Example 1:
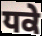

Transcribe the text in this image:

ਧਕੇ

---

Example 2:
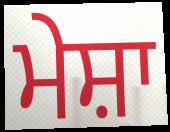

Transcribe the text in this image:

ਮੇਸ਼ਾ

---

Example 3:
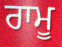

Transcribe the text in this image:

ਰਾਮੂ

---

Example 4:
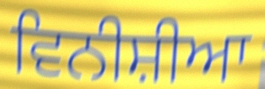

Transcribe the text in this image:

ਵਿਨੀਸ਼ੀਆ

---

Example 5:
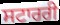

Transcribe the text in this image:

ਸਟਾਰਰੀ